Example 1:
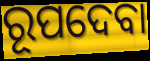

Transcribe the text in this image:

ରୂପଦେବା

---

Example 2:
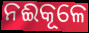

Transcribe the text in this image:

ନଈକୂଳେ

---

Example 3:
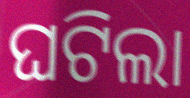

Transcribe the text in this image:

ଘଟିଲା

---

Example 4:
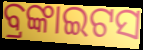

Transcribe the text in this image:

ବ୍ରଙ୍କାଇଟସ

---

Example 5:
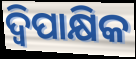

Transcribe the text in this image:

ଦ୍ୱିପାକ୍ଷିକ